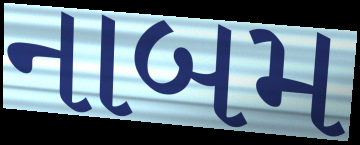
નાબમ